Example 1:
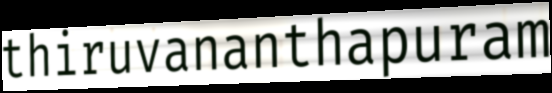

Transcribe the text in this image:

thiruvananthapuram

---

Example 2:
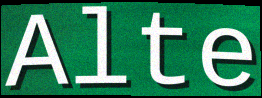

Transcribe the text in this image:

Alte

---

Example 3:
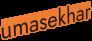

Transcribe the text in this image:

umasekhar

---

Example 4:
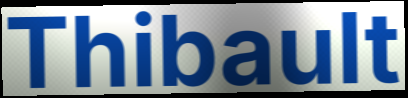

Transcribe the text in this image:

Thibault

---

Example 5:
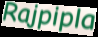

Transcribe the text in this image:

Rajpipla